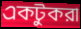
একটুকরা